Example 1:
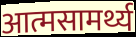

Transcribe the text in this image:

आत्मसामर्थ्य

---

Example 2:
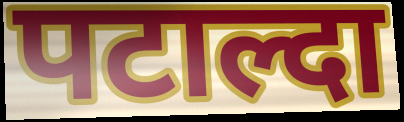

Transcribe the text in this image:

पटाल्दा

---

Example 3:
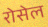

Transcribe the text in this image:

रोसेल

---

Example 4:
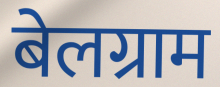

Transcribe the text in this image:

बेलग्राम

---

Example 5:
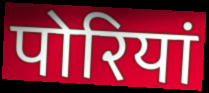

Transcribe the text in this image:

पोरियां